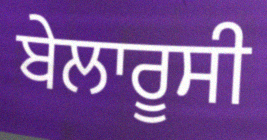
ਬੇਲਾਰੂਸੀ